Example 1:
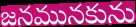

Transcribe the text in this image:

జనమునకును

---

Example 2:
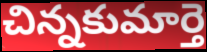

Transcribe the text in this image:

చిన్నకుమార్తె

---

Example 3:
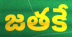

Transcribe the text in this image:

జతకే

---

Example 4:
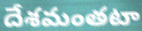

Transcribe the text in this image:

దేశమంతటా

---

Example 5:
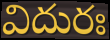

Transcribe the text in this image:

విదురః